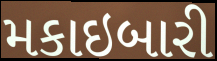
મકાઇબારી